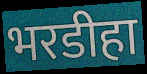
भरडीहा